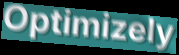
Optimizely